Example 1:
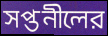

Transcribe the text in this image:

সপ্তনীলের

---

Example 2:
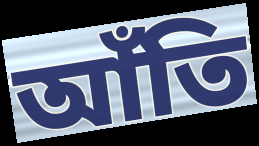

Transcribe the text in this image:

আঁতি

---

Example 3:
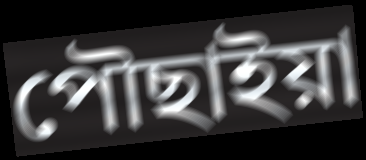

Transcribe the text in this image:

পৌছাইয়া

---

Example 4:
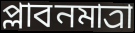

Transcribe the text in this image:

প্লাবনমাত্রা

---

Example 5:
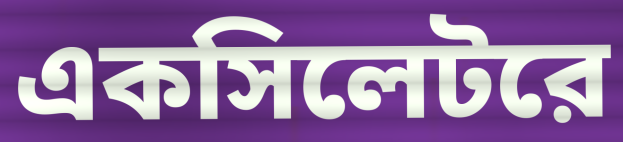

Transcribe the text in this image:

একসিলেটরে